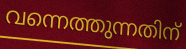
വന്നെത്തുന്നതിന്